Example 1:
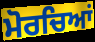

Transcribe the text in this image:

ਮੋਰਚਿਆਂ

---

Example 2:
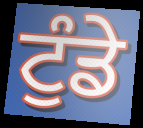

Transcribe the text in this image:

ਟੁੰਡੇ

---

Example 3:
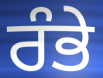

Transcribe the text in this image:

ਰੰਭੇ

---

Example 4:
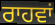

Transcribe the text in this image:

ਰਾਹਵਾਂ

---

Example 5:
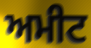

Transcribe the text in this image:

ਅਮੀਟ